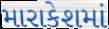
મારાકેશમાં